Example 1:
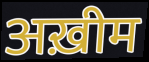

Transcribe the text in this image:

अख़ीम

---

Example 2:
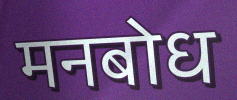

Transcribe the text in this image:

मनबोध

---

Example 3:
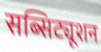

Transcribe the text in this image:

सब्सिट्यूशन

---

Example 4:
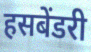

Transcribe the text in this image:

हसबेंडरी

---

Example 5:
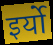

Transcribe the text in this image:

इर्यो